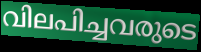
വിലപിച്ചവരുടെ